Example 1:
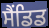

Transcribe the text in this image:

ਸੈਂਡਿਡ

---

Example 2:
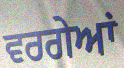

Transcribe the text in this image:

ਵਰਗੇਆਂ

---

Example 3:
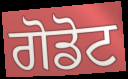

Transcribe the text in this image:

ਗੋਡੋਟ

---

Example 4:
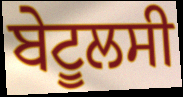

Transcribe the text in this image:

ਬੇਟੂਲਸੀ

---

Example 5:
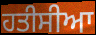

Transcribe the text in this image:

ਹਤੀਸੀਆ